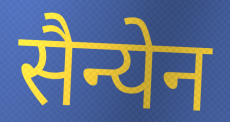
सैन्येन